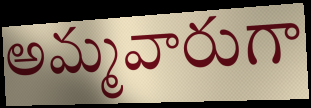
అమ్మవారుగా